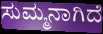
ಸುಮ್ಮನಾಗಿದೆ